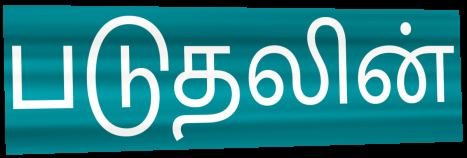
படுதலின்